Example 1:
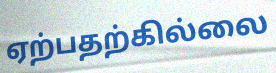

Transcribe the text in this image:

ஏற்பதற்கில்லை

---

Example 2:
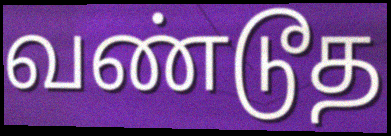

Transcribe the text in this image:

வண்டூத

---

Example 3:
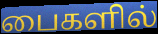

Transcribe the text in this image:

பைகளில்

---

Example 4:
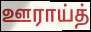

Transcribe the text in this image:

ஊராய்த்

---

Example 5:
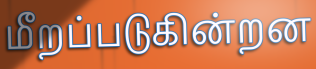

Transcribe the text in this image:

மீறப்படுகின்றன